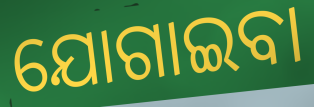
ଯୋଗାଇବା